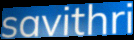
savithri